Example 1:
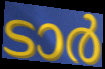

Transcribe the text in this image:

ടാർ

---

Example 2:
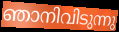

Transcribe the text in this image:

ഞാനിവിടുന്നു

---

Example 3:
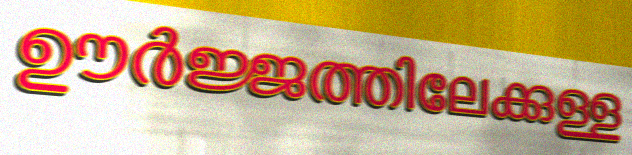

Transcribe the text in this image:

ഊർജ്ജത്തിലേക്കുള്ള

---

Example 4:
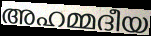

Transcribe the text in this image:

അഹമ്മദീയ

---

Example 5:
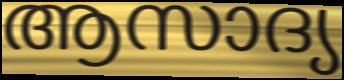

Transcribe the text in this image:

ആസാദ്യ